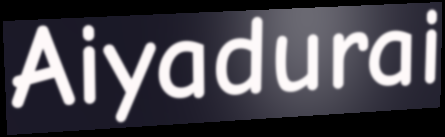
Aiyadurai